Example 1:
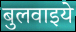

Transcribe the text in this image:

बुलवाइये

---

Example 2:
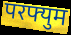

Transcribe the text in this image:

परफ्युम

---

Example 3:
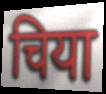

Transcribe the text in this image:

चिया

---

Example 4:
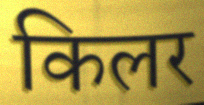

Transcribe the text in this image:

किलर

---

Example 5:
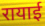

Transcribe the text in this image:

रायाई